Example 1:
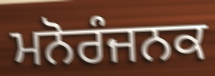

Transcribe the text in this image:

ਮਨੋਰੰਜਨਕ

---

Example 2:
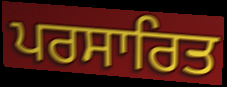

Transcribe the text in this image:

ਪਰਸਾਰਿਤ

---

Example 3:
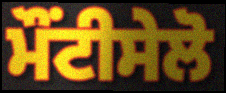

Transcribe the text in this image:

ਮੌਂਟੀਸੇਲੋ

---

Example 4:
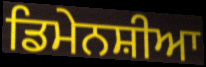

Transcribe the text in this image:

ਡਿਮੇਨਸ਼ੀਆ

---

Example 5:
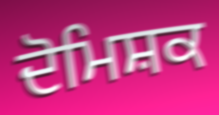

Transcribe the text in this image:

ਦੋਮਿਸ਼ਕ